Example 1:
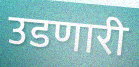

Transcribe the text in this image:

उडणारी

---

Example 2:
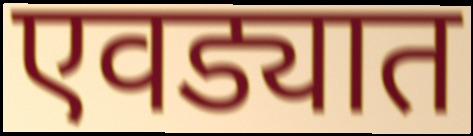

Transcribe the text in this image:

एवड्यात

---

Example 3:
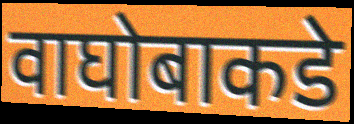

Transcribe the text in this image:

वाघोबाकडे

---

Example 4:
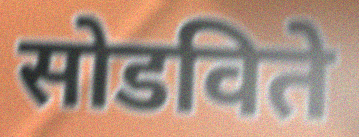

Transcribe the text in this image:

सोडविते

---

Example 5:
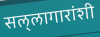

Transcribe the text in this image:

सल्लागारांशी